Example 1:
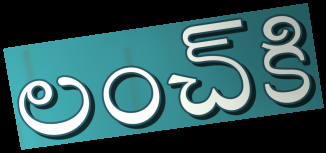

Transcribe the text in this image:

లంచ్‌కి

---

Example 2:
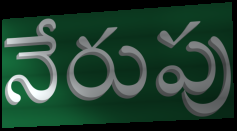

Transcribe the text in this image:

నేరుపు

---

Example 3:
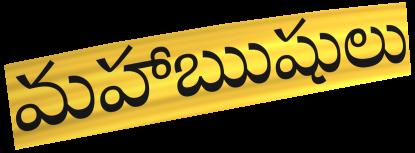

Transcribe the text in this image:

మహాఋషులు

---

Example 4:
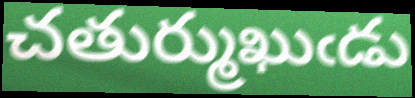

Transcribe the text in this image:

చతుర్ముఖుఁడు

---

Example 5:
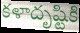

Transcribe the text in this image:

కళాదృష్టికి